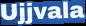
Ujjvala